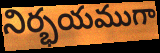
నిర్భయముగా